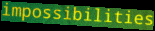
impossibilities